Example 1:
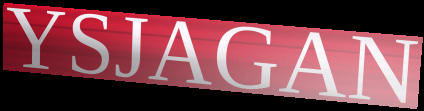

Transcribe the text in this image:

YSJAGAN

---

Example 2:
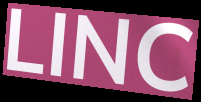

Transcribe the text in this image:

LINC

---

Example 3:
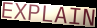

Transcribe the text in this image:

EXPLAIN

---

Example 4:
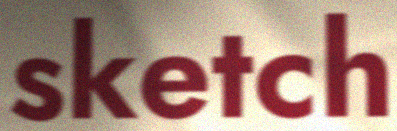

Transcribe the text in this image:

sketch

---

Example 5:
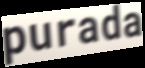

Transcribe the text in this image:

purada